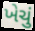
ખેચું